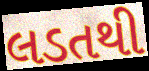
લડતથી